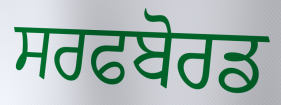
ਸਰਫਬੋਰਡ